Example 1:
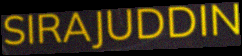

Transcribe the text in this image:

SIRAJUDDIN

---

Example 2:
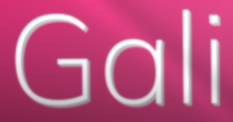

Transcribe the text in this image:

Gali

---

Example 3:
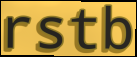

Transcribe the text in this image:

rstb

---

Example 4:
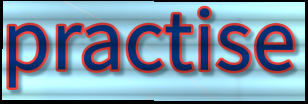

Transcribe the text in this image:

practise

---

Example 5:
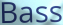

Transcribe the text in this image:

Bass